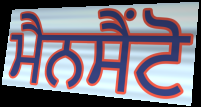
ਮੈਨਸੈਂਟੋ